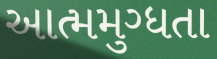
આત્મમુગ્ધતા